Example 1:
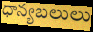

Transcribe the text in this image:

ధాన్యబలులు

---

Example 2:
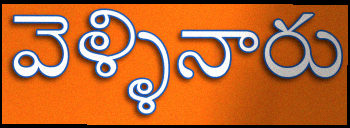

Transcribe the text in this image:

వెళ్ళినారు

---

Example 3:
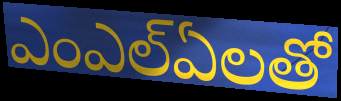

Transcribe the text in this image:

ఎంఎల్ఏలతో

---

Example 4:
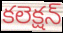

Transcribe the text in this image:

కలెక్షన్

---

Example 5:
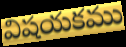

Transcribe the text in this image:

విషయకము